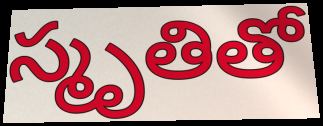
స్మృతితో